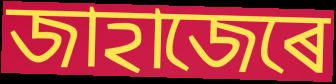
জাহাজেৰে